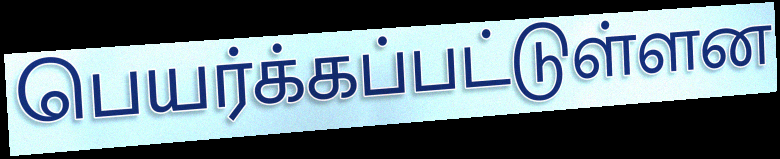
பெயர்க்கப்பட்டுள்ளன